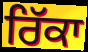
ਰਿੱਕਾ